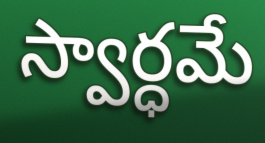
స్వార్ధమే